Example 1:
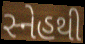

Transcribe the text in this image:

સ્નેહથી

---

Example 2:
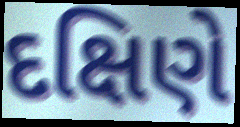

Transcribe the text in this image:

દક્ષિણે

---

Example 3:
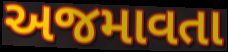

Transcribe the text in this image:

અજમાવતા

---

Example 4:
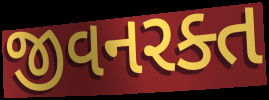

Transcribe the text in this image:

જીવનરક્ત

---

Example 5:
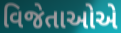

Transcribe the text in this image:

વિજેતાઓએ